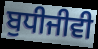
ਬੁਧੀਜੀਵੀ